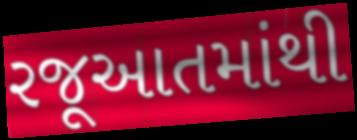
રજૂઆતમાંથી